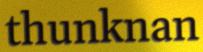
thunknan